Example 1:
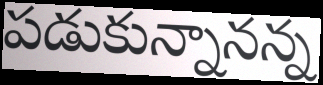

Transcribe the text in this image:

పడుకున్నానన్న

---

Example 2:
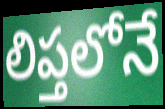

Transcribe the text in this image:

లిప్తలోనే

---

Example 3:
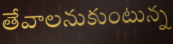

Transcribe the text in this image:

తేవాలనుకుంటున్న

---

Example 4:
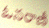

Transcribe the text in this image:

ఓనరాణీ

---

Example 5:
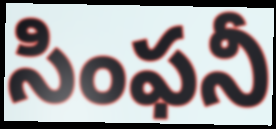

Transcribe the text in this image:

సింఫనీ